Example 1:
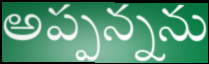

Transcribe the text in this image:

అప్పన్నను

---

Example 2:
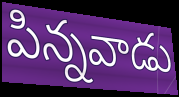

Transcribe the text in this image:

పిన్నవాడు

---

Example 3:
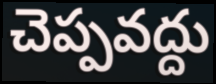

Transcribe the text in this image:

చెప్పవద్దు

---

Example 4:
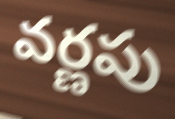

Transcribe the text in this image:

వర్ణపు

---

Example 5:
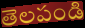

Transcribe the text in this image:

తెలపండి